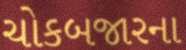
ચોકબજારના